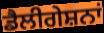
ਡੈਲੀਗੇਸ਼ਨਾਂ